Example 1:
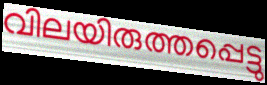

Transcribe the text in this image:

വിലയിരുത്തപ്പെട്ടു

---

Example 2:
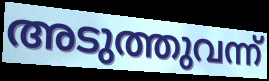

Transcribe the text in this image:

അടുത്തുവന്ന്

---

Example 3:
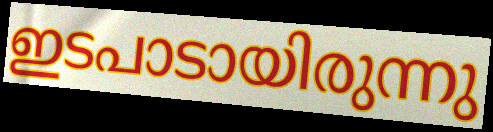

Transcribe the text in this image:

ഇടപാടായിരുന്നു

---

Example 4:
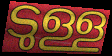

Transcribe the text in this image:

ടുള്ള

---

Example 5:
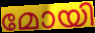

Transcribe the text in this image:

മോയി